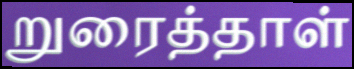
றுரைத்தாள்